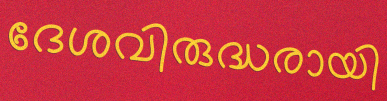
ദേശവിരുദ്ധരായി